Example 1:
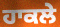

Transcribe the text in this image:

ਹਾਕਲੇ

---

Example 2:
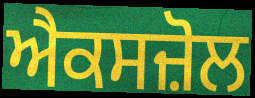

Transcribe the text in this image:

ਐਕਸਜ਼ੋਲ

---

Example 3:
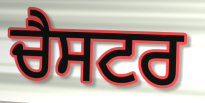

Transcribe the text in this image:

ਚੈਸਟਰ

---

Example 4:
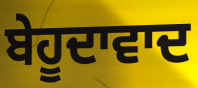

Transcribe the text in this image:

ਬੇਹੂਦਾਵਾਦ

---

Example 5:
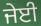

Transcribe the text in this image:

ਜੇਈ